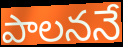
పాలననే